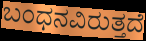
ಬಂಧನವಿರುತ್ತದೆ